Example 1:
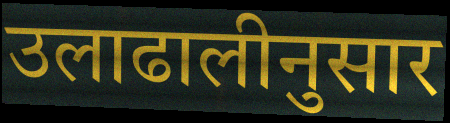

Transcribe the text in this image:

उलाढालीनुसार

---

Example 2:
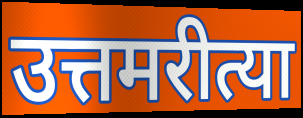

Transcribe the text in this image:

उत्तमरीत्या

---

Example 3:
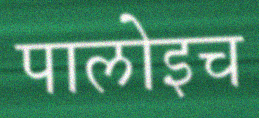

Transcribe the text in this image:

पालोइच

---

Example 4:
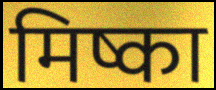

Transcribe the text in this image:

मिष्का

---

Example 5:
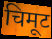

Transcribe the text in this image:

चिमूट